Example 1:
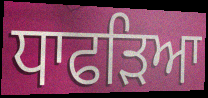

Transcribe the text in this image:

ਧਾਫੜਿਆ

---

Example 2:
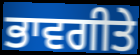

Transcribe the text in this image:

ਭਾਵਗੀਤੇ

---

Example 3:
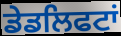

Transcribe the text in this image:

ਡੇਡਲਿਫਟਾਂ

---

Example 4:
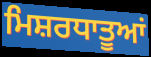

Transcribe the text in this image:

ਮਿਸ਼ਰਧਾਤੂਆਂ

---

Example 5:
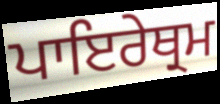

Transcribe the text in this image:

ਪਾਇਰੇਥ੍ਰਮ